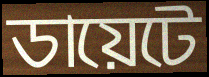
ডায়েটে